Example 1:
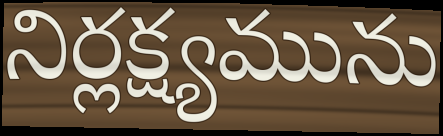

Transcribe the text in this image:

నిర్లక్ష్యమును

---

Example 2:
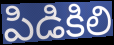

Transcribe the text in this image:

పిడికిలి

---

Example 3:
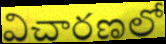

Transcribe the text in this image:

విచారణలో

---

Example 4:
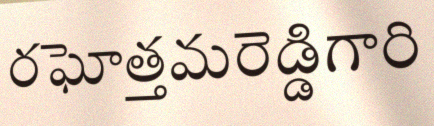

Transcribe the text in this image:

రఘోత్తమరెడ్డిగారి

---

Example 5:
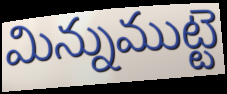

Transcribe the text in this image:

మిన్నుముట్టె